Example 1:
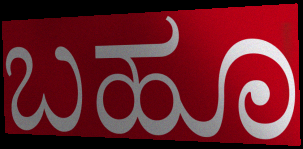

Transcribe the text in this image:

ಬಹೂ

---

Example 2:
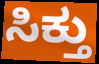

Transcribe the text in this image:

ಸಿಕ್ತು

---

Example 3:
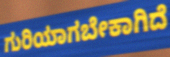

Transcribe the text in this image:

ಗುರಿಯಾಗಬೇಕಾಗಿದೆ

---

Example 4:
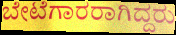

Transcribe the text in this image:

ಬೇಟೆಗಾರರಾಗಿದ್ದರು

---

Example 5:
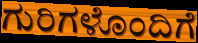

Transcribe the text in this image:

ಗುರಿಗಳೊಂದಿಗೆ